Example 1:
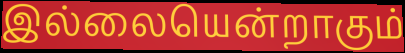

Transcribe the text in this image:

இல்லையென்றாகும்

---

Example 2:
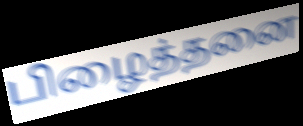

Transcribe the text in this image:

பிழைத்தனை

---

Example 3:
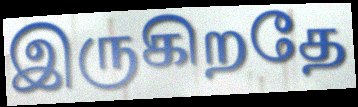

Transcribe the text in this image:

இருகிறதே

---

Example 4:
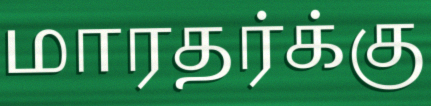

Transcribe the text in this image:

மாரதர்க்கு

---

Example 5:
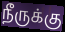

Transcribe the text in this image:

நீருக்கு